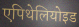
एपिथेलियोइड